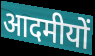
आदमीयों